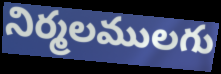
నిర్మలములగు